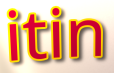
itin